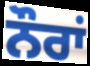
ਨੌਰਾਂ